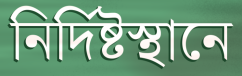
নির্দিষ্টস্থানে